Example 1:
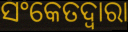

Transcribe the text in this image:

ସଂକେତଦ୍ୱାରା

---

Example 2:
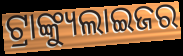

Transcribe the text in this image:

ଟ୍ରାଙ୍କ୍ୟୁଲାଇଜର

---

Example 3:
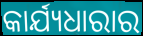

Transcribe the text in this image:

କାର୍ଯ୍ୟଧାରାର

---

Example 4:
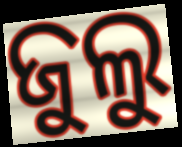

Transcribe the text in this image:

ଜୁଲୁ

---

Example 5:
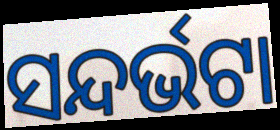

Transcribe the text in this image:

ସନ୍ଦର୍ଭଟା